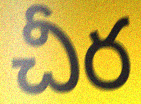
చీర